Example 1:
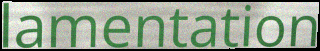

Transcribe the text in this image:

lamentation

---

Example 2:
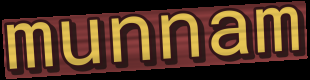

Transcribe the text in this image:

munnam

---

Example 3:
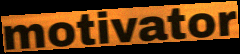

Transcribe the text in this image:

motivator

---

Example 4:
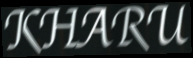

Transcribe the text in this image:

KHARU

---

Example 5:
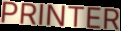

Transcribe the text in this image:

PRINTER